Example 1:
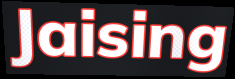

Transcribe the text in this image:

Jaising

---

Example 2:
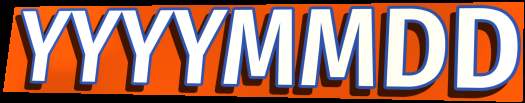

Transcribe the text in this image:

YYYYMMDD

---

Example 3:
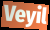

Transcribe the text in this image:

Veyil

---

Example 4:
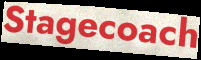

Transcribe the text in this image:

Stagecoach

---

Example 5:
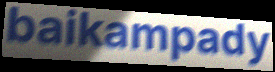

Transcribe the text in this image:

baikampady